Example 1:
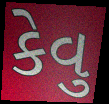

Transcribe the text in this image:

કેવુ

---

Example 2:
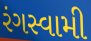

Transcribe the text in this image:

રંગસ્વામી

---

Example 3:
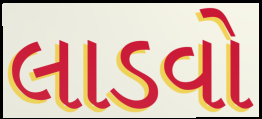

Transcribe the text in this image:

લાડવો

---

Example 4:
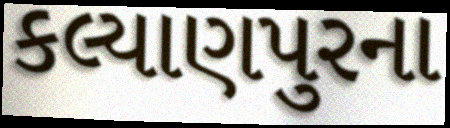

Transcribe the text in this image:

કલ્યાણપુરના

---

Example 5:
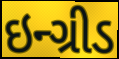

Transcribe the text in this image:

ઇન્ગ્રીડ